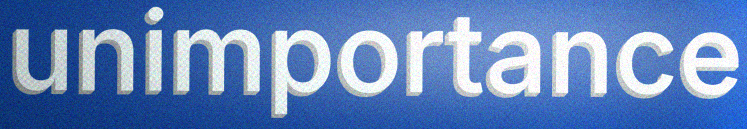
unimportance